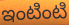
ఇంటింటి